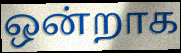
ஒன்றாக